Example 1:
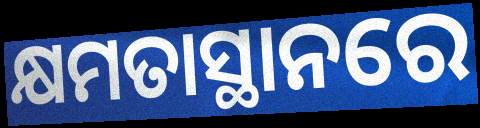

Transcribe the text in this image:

କ୍ଷମତାସ୍ଥାନରେ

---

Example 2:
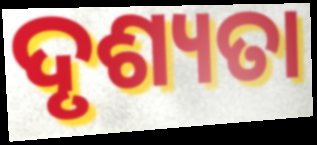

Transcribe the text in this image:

ଦୃଶ୍ୟତା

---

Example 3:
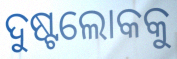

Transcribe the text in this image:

ଦୁଷ୍ଟଲୋକକୁ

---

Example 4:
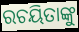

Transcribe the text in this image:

ରଚୟିତାଙ୍କୁ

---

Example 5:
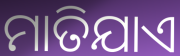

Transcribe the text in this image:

ମାତିଯାଏ